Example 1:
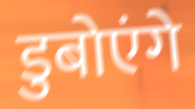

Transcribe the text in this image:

डुबोएंगे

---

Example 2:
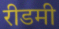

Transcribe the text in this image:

रीडमी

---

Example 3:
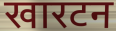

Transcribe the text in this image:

खारटन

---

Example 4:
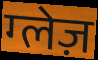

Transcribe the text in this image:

ग्लेज़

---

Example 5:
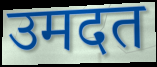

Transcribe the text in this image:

उमदत